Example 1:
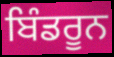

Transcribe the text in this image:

ਬਿੰਡਰੂਨ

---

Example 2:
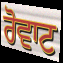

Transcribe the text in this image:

ਰੋਵਾਟ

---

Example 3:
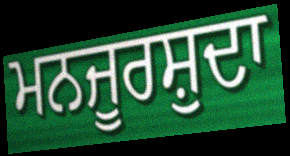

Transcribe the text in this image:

ਮਨਜੂਰਸ਼ੁਦਾ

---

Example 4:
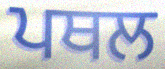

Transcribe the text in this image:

ਪਥਲ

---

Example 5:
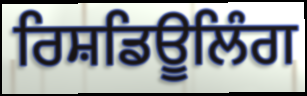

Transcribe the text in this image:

ਰਿਸ਼ਡਿਊਲਿੰਗ